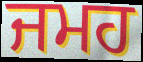
ਜਮਹ